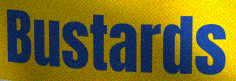
Bustards